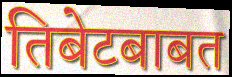
तिबेटबाबत